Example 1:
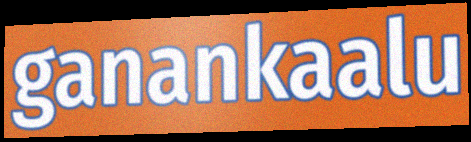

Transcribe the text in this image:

ganankaalu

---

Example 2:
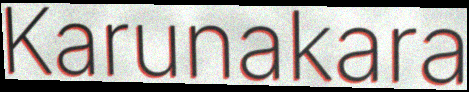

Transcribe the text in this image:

Karunakara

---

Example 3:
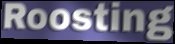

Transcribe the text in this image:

Roosting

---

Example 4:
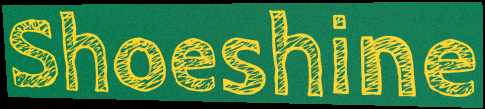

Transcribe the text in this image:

Shoeshine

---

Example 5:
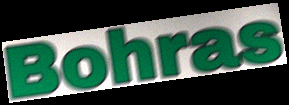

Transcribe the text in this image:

Bohras